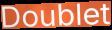
Doublet